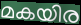
മകയിര